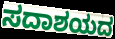
ಸದಾಶಯದ